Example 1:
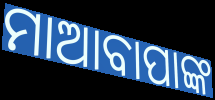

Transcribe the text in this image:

ମାଆବାପାଙ୍କ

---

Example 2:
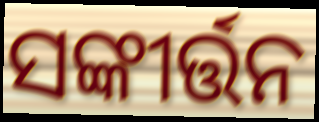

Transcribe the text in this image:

ସଙ୍କୀର୍ତ୍ତନ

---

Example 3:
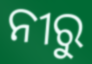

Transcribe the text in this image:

ନୀରୁ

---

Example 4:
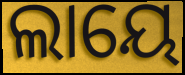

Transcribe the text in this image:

ଲାୟେ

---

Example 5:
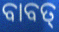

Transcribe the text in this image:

ବାବତ୍